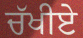
ਚੱਖੀਏ